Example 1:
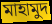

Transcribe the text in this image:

মাহামুদ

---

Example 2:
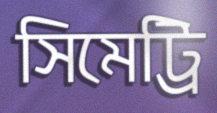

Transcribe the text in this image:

সিমেট্রি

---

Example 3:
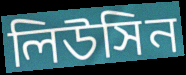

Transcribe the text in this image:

লিউসিন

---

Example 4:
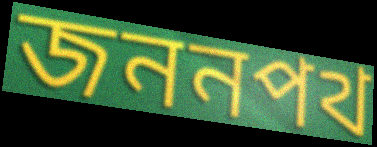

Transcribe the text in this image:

জননপথ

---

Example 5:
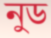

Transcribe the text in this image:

নুড